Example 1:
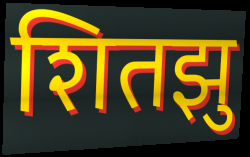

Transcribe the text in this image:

शितझु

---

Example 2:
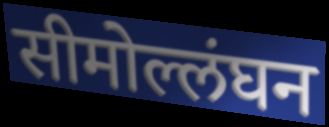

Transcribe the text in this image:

सीमोल्लंघन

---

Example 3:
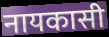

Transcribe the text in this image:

नायकासी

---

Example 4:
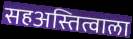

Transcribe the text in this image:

सहअस्तित्वाला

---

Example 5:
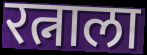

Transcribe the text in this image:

रत्नाला